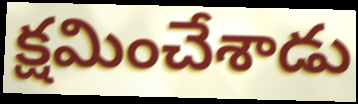
క్షమించేశాడు